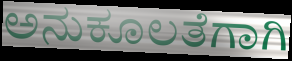
ಅನುಕೂಲತೆಗಾಗಿ